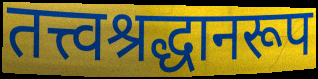
तत्त्वश्रद्धानरूप